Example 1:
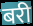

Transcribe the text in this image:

बरी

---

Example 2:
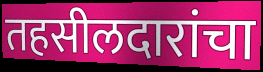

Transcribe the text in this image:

तहसीलदारांचा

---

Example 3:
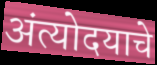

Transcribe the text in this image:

अंत्योदयाचे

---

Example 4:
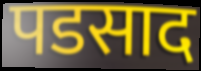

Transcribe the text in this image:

पडसाद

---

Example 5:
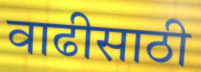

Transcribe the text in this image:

वाढीसाठी